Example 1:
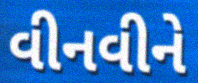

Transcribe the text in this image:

વીનવીને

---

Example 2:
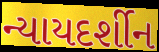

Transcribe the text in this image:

ન્યાયદર્શીન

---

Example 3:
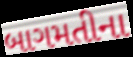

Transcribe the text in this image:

બાગમતીના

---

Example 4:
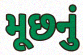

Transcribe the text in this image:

મૂછનું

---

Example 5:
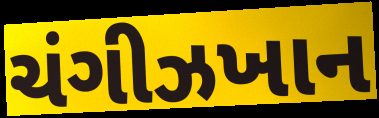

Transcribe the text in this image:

ચંગીઝખાન